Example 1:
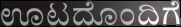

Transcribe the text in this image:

ಊಟದೊಂದಿಗೆ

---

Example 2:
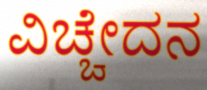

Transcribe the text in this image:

ವಿಚ್ಚೇದನ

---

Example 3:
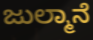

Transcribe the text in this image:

ಜುಲ್ಮಾನೆ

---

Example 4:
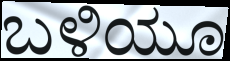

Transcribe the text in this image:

ಬಳಿಯೂ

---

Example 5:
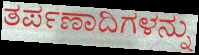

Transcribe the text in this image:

ತರ್ಪಣಾದಿಗಳನ್ನು